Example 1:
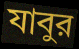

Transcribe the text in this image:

যাবুর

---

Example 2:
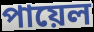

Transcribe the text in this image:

পায়েল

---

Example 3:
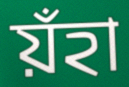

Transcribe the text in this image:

য়ঁহা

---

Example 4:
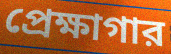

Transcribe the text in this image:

প্রেক্ষাগার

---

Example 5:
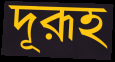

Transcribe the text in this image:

দূরূহ